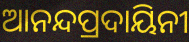
ଆନନ୍ଦପ୍ରଦାୟିନୀ